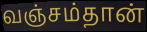
வஞ்சம்தான்